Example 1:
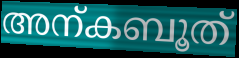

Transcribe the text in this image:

അന്കബൂത്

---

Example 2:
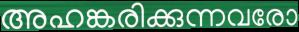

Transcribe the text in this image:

അഹങ്കരിക്കുന്നവരോ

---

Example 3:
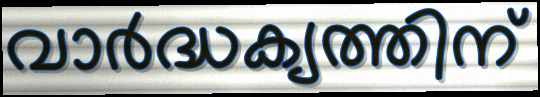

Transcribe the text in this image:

വാർദ്ധക്യത്തിന്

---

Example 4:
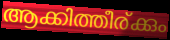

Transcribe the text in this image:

ആക്കിത്തീര്ക്കും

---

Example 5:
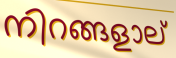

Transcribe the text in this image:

നിറങ്ങളാല്